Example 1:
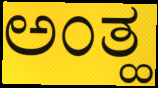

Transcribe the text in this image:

ಅಂತ್ಹ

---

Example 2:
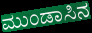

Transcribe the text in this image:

ಮುಂಡಾಸಿನ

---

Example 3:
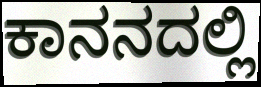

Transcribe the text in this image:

ಕಾನನದಲ್ಲಿ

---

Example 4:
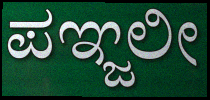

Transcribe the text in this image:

ಪಞ್ಜಲೀ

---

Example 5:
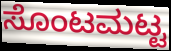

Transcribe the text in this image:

ಸೊಂಟಮಟ್ಟ